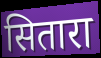
सितारा